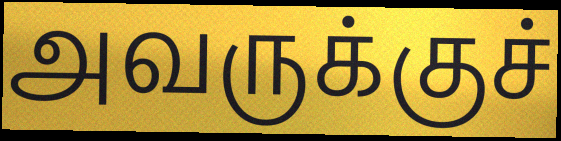
அவருக்குச்